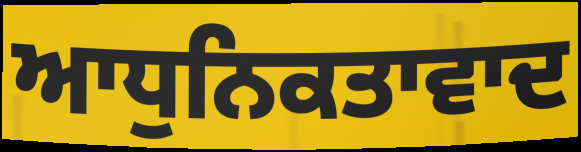
ਆਧੁਨਿਕਤਾਵਾਦ